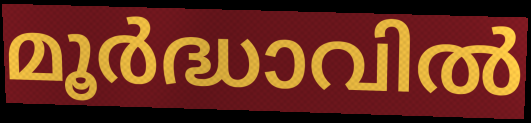
മൂർദ്ധാവിൽ